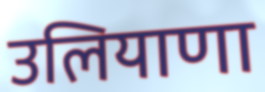
उलियाणा